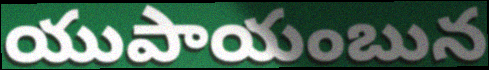
యుపాయంబున